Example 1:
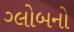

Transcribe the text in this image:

ગ્લોબનો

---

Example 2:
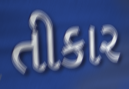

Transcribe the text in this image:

તીકાર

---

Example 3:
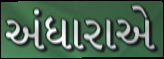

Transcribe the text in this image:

અંધારાએ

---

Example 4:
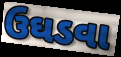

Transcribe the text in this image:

ઉઘડવા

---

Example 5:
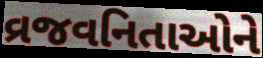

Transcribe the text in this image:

વ્રજવનિતાઓને